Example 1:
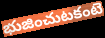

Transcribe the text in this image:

భుజించుటకంటె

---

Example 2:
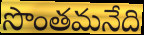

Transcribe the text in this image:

సొంతమనేది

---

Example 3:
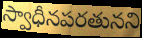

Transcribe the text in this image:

స్వాధీనపరతునని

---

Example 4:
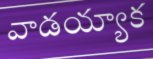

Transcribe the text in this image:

వాడయ్యాక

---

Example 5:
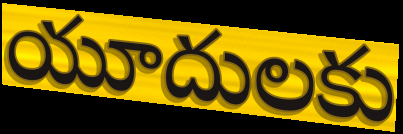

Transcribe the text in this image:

యూదులకు